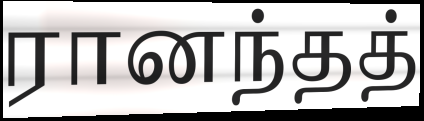
ரானந்தத்